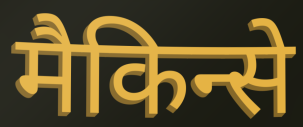
मैकिन्से